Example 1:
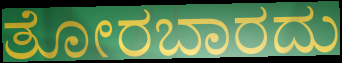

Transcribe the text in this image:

ತೋರಬಾರದು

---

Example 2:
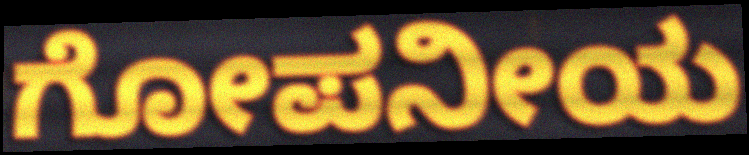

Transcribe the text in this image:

ಗೋಪನೀಯ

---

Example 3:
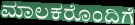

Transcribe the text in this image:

ಮಾಲಕರೊಂದಿಗೆ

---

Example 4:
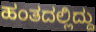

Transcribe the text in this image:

ಹಂತದಲ್ಲಿದ್ದು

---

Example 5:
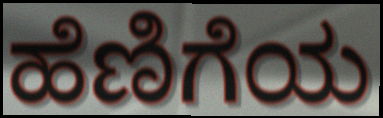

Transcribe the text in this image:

ಹೆಣಿಗೆಯ